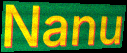
Nanu